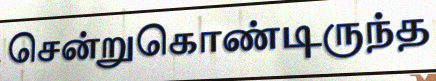
சென்றுகொண்டிருந்த